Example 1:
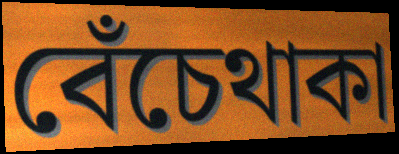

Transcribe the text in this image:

বেঁচেথাকা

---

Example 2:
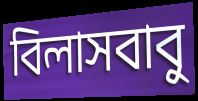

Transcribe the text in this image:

বিলাসবাবু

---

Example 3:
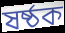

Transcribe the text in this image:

ষষ্ঠক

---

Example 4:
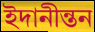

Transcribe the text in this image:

ইদানীন্তন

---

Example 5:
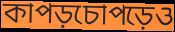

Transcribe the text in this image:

কাপড়চোপড়েও